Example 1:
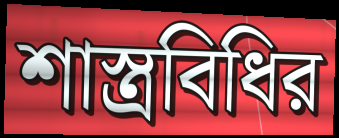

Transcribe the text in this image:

শাস্ত্রবিধির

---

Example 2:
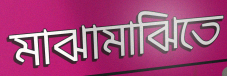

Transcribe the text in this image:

মাঝামাঝিতে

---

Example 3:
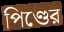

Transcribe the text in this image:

পিণ্ডের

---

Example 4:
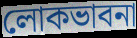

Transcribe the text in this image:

লোকভাবনা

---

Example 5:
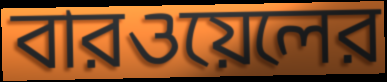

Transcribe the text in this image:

বারওয়েলের